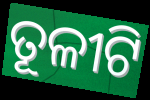
ତୂଳୀଟି